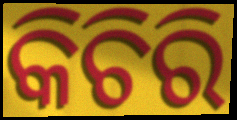
କିଚିରି